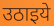
उठाइये